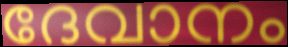
ദേവാനം